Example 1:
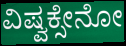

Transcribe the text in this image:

ವಿಷ್ವಕ್ಸೇನೋ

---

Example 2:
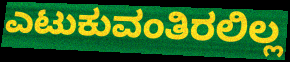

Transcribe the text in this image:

ಎಟುಕುವಂತಿರಲಿಲ್ಲ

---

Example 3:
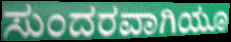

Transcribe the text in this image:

ಸುಂದರವಾಗಿಯೂ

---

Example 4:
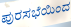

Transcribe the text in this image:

ಪುರಸಭೆಯಿಂದ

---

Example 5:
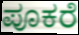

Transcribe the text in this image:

ಪೂಕರೆ